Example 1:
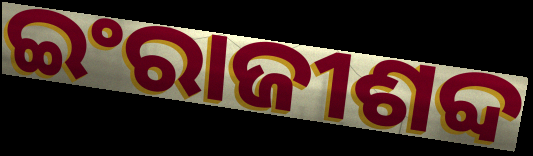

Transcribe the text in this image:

ଇଂରାଜୀଶବ୍ଦ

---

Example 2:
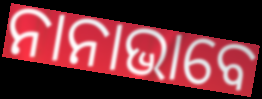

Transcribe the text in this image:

ନାନାଭାବେ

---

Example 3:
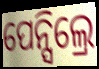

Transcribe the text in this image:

ପେନ୍ସିଲ୍ରେ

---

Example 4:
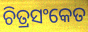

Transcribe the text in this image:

ଚିତ୍ରସଂକେତ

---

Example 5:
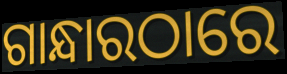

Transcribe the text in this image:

ଗାନ୍ଧାରଠାରେ